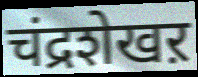
चंद्रशेखऱ